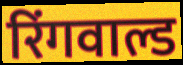
रिंगवाल्ड